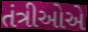
તંત્રીઓએ